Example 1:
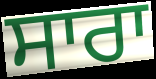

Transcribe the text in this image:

ਸਾਰਾ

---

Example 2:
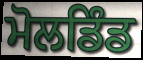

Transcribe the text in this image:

ਮੋਲਡਿੰਡ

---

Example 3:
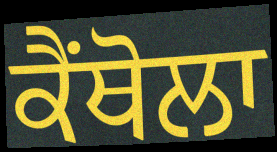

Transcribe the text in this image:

ਕੈਂਥੋਲਾ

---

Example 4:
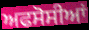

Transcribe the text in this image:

ਅਫਸੋਸੀਆਂ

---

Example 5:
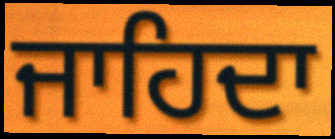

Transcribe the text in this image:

ਜਾਹਿਦਾ